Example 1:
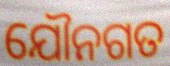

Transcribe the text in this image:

ଯୌନଗତ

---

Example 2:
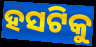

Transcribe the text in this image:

ହସଟିକୁ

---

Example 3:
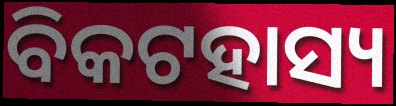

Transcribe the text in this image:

ବିକଟହାସ୍ୟ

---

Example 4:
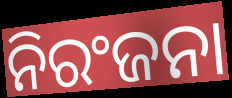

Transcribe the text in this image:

ନିରଂଜନା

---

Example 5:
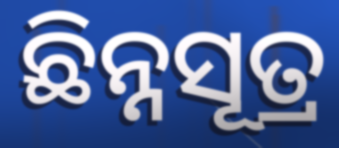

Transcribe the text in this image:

ଛିନ୍ନସୂତ୍ର